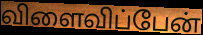
விளைவிப்பேன்